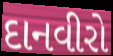
દાનવીરો